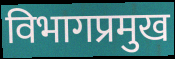
विभागप्रमुख